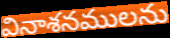
వినాశనములను